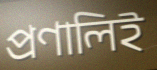
প্রণালিই